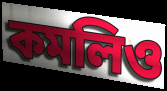
কমলিও